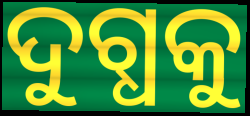
ଦୁଗ୍ଧକୁ